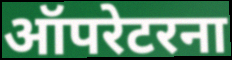
ऑपरेटरना